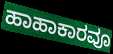
ಹಾಹಾಕಾರವೂ